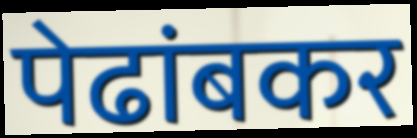
पेढांबकर